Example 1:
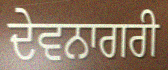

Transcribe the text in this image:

ਦੇਵਨਾਗਰੀ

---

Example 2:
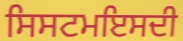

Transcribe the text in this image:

ਸਿਸਟਮਇਸਦੀ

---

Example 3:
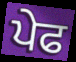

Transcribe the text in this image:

ਪੇਫ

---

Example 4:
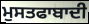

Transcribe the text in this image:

ਮੁਸਤਫਾਬਾਦੀ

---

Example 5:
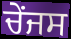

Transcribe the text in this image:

ਚੇਂਜਸ